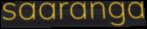
saaranga